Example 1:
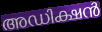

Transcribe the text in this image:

അഡിക്ഷൻ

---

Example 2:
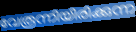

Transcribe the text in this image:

വേരൂന്നിയിരിക്കുന്ന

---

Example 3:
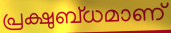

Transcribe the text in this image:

പ്രക്ഷുബ്ധമാണ്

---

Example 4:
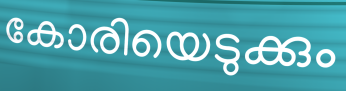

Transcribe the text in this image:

കോരിയെടുക്കും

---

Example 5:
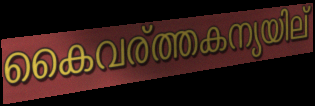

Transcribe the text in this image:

കൈവര്ത്തകന്യയില്